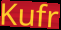
Kufr